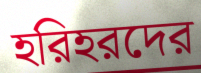
হরিহরদের